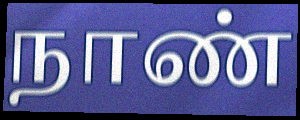
நாண்